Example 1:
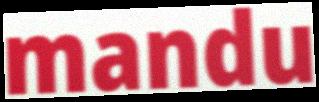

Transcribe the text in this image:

mandu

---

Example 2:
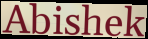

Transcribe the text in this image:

Abishek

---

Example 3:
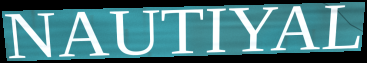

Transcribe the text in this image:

NAUTIYAL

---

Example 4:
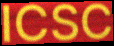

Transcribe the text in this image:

ICSC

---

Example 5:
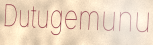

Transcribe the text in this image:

Dutugemunu